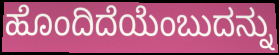
ಹೊಂದಿದೆಯೆಂಬುದನ್ನು